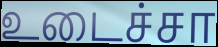
உடைச்சா